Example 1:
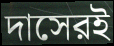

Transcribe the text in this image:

দাসেরই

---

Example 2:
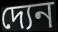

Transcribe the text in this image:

দ্যেন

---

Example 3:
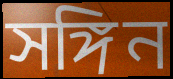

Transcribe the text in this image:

সঙ্গিন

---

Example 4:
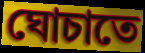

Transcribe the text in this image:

ঘোচাতে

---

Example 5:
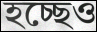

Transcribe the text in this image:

হচ্ছেও